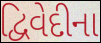
દ્વિવેદીના